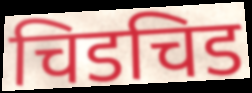
चिडचिड